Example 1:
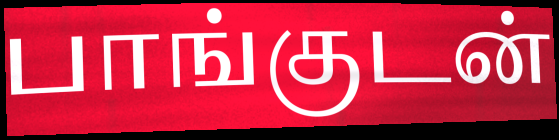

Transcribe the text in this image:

பாங்குடன்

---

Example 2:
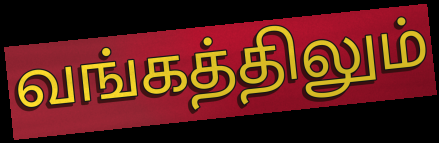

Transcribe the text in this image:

வங்கத்திலும்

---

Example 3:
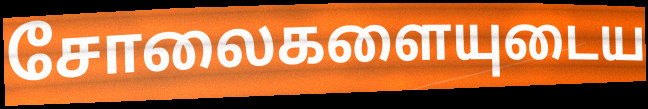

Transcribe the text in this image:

சோலைகளையுடைய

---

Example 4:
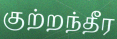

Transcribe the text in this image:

குற்றந்தீர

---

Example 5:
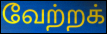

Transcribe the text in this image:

வேற்றக்